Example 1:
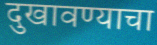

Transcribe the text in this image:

दुखावण्याचा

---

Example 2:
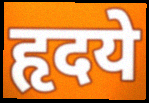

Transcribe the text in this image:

हृदये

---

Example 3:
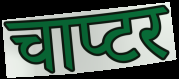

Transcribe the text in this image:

चाप्टर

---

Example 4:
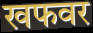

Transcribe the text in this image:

खफवर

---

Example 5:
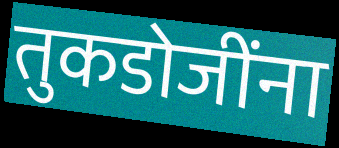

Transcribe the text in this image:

तुकडोजींना